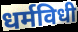
धर्मविधी